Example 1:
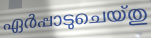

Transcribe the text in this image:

ഏർപ്പാടുചെയ്തു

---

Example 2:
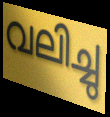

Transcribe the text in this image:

വലിച്ചു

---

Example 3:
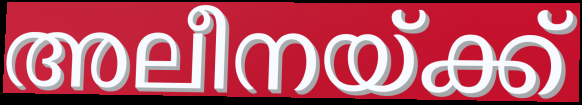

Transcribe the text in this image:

അലീനയ്ക്ക്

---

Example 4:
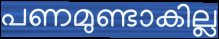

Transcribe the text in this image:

പണമുണ്ടാകില്ല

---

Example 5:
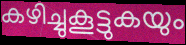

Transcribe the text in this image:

കഴിച്ചുകൂട്ടുകയും